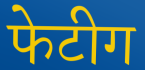
फेटीग